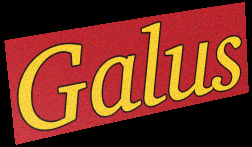
Galus